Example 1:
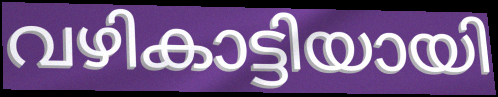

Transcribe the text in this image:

വഴികാട്ടിയായി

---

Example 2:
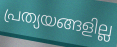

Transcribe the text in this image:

പ്രത്യയങ്ങളില്ല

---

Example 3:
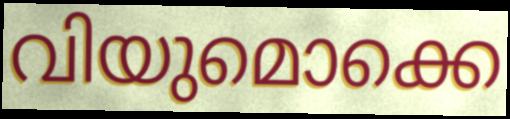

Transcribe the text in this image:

വിയുമൊക്കെ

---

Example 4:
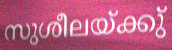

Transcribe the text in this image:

സുശീലയ്ക്കു്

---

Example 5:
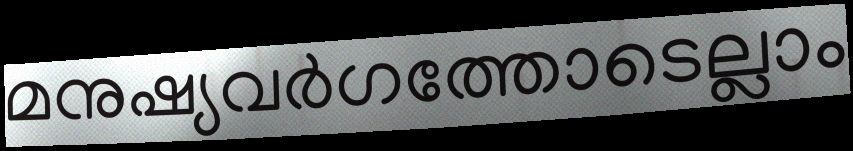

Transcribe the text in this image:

മനുഷ്യവർഗത്തോടെല്ലാം